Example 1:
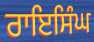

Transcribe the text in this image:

ਰਾਇਸਿੰਘ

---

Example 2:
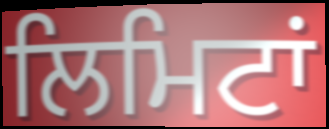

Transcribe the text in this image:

ਲਿਮਿਟਾਂ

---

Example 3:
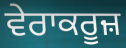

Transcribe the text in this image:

ਵੇਰਾਕਰੂਜ਼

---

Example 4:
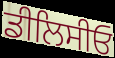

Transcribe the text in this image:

ਡੀਲਿਸੀਓ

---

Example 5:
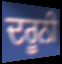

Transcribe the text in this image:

ਦਰੂਨੀ